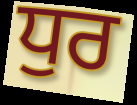
ਧੁਰ